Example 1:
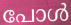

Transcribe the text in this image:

പോൾ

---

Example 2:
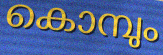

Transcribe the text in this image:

കൊമ്പും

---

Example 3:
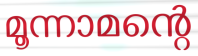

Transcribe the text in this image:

മൂന്നാമന്റെ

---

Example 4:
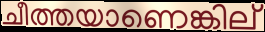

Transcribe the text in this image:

ചീത്തയാണെങ്കില്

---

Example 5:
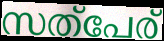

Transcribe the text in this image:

സത്പേര്